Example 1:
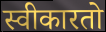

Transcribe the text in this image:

स्वीकारतो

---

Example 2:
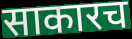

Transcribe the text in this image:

साकारच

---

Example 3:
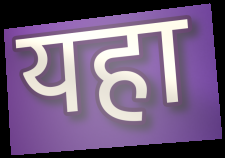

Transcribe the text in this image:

यहा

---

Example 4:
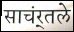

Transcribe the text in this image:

साचंर्तले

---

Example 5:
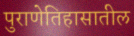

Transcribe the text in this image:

पुराणेतिहासातील